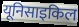
यूनिसाइकिल